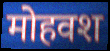
मोहवश